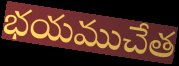
భయముచేత